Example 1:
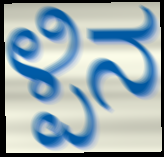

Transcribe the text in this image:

ಳ್ಪಿನ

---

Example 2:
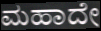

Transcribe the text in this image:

ಮಹಾದೇ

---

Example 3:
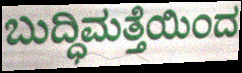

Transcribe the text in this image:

ಬುದ್ಧಿಮತ್ತೆಯಿಂದ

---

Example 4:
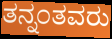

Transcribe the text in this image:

ತನ್ನಂತವರು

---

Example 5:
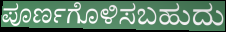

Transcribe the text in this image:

ಪೂರ್ಣಗೊಳಿಸಬಹುದು